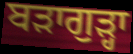
ਬੜਾਗੁੜ੍ਹਾ